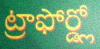
ట్రాఫోర్డ్లో